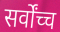
सर्वोंच्च